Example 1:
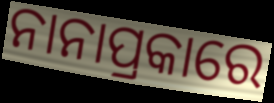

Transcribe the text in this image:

ନାନାପ୍ରକାରେ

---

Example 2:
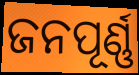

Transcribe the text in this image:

ଜନପୂର୍ଣ୍ଣ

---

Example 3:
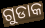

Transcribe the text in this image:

ଗୁଡାକ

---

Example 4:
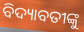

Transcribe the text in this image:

ବିଦ୍ୟାବତୀଙ୍କୁ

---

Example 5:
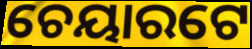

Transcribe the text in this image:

ଚେୟାରଟେ